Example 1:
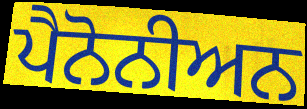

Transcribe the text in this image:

ਪੈਨੋਨੀਅਨ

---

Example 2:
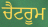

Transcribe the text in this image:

ਚੈਟਰੂਮ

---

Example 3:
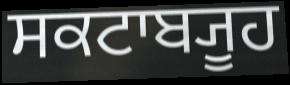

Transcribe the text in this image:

ਸਕਟਾਬ੍ਯੂਹ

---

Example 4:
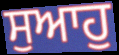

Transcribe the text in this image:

ਸੁਆਹੁ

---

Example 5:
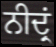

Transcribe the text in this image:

ਨੀਦ੍ਰਂ